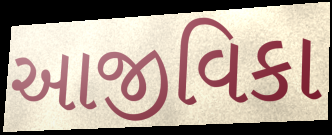
આજીવિકા